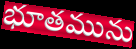
భూతమును